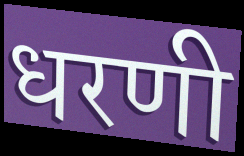
धरणी